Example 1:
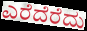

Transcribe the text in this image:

ಎರೆದೆರೆದು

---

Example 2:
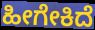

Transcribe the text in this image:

ಹೀಗೇಕಿದೆ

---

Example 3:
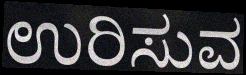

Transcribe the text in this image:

ಉರಿಸುವ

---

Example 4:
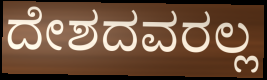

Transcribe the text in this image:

ದೇಶದವರಲ್ಲ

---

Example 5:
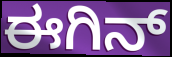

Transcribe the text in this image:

ಈಗಿನ್